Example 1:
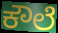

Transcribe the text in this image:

ಕೌಲೆ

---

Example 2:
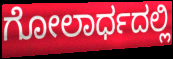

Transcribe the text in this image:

ಗೋಲಾರ್ಧದಲ್ಲಿ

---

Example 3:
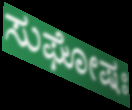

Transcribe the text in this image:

ಸುಘೋಷಃ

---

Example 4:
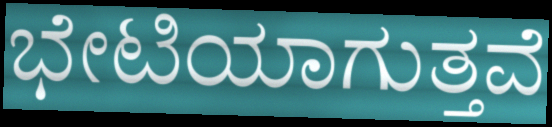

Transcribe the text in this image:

ಭೇಟಿಯಾಗುತ್ತವೆ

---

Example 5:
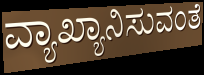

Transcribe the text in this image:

ವ್ಯಾಖ್ಯಾನಿಸುವಂತೆ